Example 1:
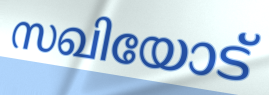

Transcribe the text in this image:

സഖിയോട്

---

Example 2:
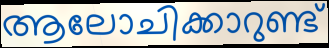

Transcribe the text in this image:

ആലോചിക്കാറുണ്ട്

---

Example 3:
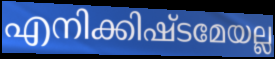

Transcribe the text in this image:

എനിക്കിഷ്ടമേയല്ല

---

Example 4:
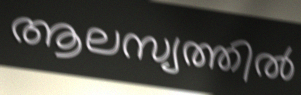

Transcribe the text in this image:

ആലസ്യത്തിൽ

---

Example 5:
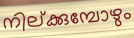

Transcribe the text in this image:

നില്ക്കുമ്പോഴും